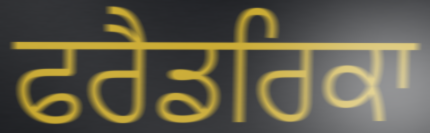
ਫਰੈਡਰਿਕਾ